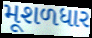
મૂશળધાર